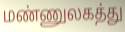
மண்ணுலகத்து